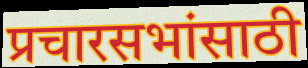
प्रचारसभांसाठी